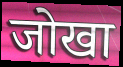
जोखा